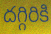
దగ్గిరికి